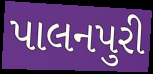
પાલનપુરી